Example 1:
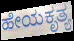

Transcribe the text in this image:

ಹೇಯಕೃತ್ಯ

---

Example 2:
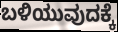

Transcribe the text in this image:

ಬಳಿಯುವುದಕ್ಕೆ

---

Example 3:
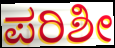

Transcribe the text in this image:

ಪರಿಶೀ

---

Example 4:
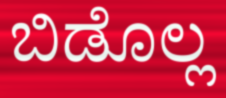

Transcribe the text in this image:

ಬಿಡೊಲ್ಲ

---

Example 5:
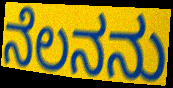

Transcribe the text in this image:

ನೆಲನನು